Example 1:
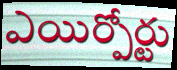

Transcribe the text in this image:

ఎయిర్పోర్టు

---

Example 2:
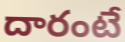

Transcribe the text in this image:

దారంటే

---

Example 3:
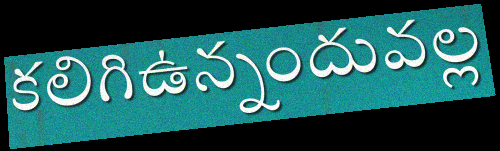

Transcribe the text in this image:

కలిగిఉన్నందువల్ల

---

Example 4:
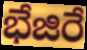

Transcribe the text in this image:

భేజిరే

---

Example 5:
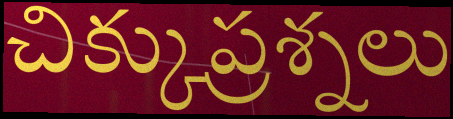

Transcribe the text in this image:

చిక్కుప్రశ్నలు